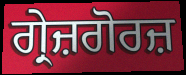
ਗ੍ਰੇਜ਼ਗੋਰਜ਼